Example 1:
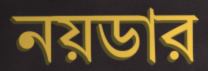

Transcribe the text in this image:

নয়ডার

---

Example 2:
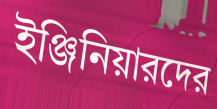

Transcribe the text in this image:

ইঞ্জিনিয়ারদের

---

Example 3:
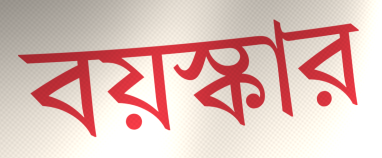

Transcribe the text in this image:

বয়স্কার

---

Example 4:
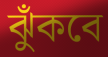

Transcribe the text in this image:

ঝুঁকবে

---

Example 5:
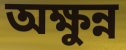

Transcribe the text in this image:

অক্ষুন্ন